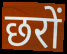
छरों